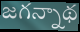
జగన్నాథ